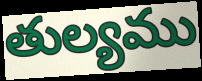
తుల్యము